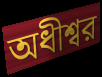
অধীশ্বর